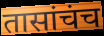
तासांचंच